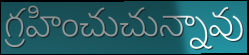
గ్రహించుచున్నావు